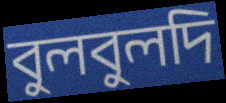
বুলবুলদি